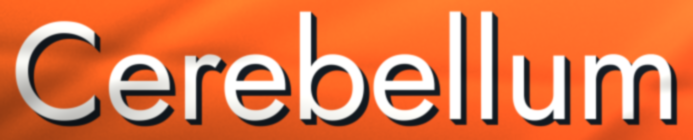
Cerebellum